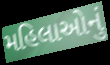
મહિલાઓનું